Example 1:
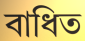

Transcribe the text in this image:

বাধিত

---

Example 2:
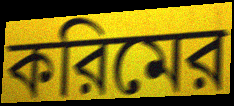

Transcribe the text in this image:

করিমের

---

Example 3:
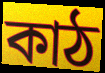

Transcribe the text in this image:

কাঠ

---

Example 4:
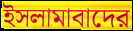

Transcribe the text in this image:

ইসলামাবাদের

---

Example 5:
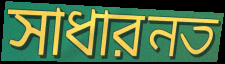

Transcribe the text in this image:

সাধারনত